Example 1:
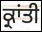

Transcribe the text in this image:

ਕ੍ਰਾਂਤੀ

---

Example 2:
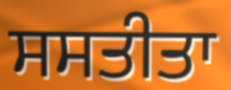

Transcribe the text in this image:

ਸਸਤੀਤਾ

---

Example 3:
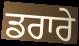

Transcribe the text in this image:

ਡਰਾਰੇ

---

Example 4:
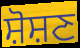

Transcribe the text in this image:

ਸ਼ੋਸ਼ਣ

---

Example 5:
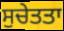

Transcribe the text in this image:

ਸੁਚੇਤਤਾ